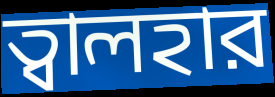
ত্বালহার